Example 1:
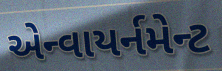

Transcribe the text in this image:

એન્વાયર્નમેન્ટ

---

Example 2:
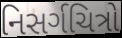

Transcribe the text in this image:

નિસર્ગચિત્રો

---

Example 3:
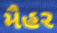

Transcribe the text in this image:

મૈહર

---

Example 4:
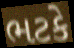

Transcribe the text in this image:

ભટકે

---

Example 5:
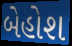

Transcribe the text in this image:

બેહોશ